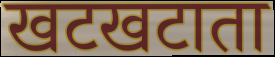
खटखटाता